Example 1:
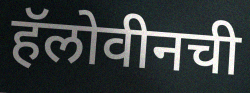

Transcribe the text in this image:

हॅलोवीनची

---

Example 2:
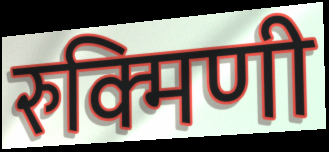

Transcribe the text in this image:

रुक्मिणी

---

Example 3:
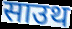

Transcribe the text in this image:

साउथ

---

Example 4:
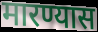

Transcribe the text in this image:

मारण्यास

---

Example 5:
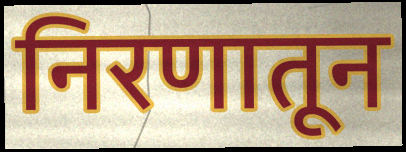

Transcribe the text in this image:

निरणातून